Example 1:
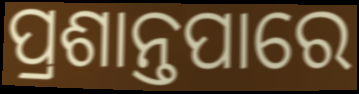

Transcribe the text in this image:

ପ୍ରଶାନ୍ତପାରେ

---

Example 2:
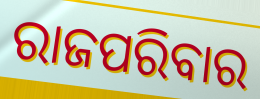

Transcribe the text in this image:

ରାଜପରିବାର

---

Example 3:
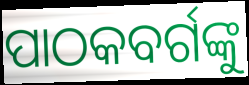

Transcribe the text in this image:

ପାଠକବର୍ଗଙ୍କୁ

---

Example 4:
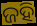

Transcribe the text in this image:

ଜହି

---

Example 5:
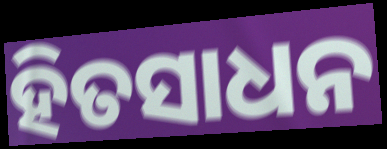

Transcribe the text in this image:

ହିତସାଧନ